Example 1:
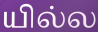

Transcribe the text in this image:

யில்ல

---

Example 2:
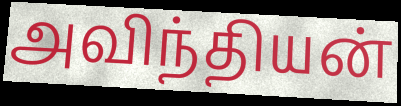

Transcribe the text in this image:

அவிந்தியன்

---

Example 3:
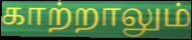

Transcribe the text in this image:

காற்றாலும்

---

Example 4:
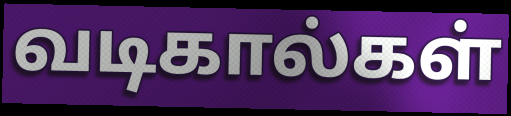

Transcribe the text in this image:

வடிகால்கள்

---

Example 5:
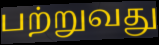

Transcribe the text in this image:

பற்றுவது